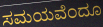
ಸಮಯವೆಂದೂ